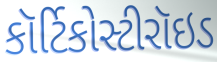
કૉર્ટિકોસ્ટીરૉઇડ